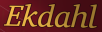
Ekdahl